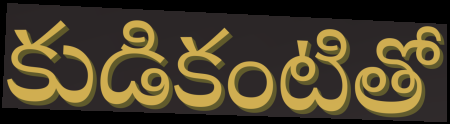
కుడికంటితో